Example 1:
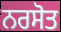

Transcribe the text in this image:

ਨਰਸੋਤ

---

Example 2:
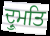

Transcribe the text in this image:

ਦ੍ਰੁਮਤਿ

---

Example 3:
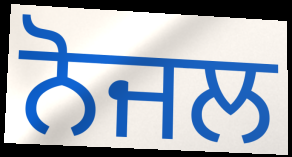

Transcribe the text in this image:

ਨੋਜਲ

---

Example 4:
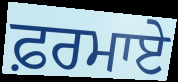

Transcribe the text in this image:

ਫ਼ਰਮਾਏ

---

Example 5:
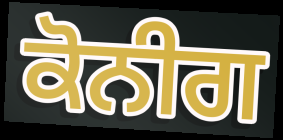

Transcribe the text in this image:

ਕੋਨੀਗ